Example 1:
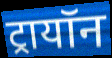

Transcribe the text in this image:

ट्रायॉन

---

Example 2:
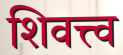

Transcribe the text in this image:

शिवत्त्व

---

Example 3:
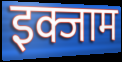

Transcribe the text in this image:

इक्जाम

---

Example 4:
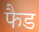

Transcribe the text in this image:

फैड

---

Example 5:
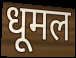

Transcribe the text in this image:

धूमल